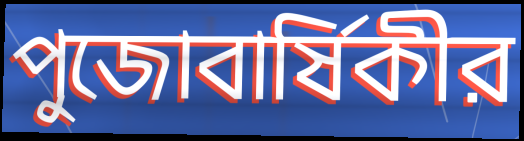
পুজোবার্ষিকীর